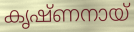
കൃഷ്ണനായ്